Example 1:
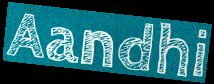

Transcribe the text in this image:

Aandhi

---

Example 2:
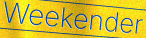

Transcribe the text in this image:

Weekender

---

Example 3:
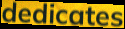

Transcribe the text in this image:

dedicates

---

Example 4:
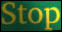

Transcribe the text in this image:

Stop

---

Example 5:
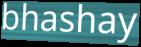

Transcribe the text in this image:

bhashay